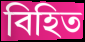
বিহিত